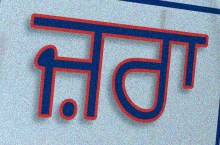
ਜ਼ਰਾ